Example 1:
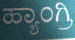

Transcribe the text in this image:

ಹ್ಯಾಂಗ್ರಿ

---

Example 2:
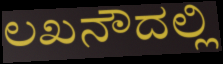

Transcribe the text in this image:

ಲಖನೌದಲ್ಲಿ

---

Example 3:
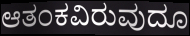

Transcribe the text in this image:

ಆತಂಕವಿರುವುದೂ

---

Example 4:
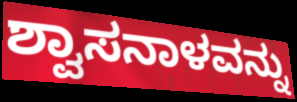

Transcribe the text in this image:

ಶ್ವಾಸನಾಳವನ್ನು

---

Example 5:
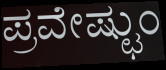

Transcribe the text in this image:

ಪ್ರವೇಷ್ಟುಂ